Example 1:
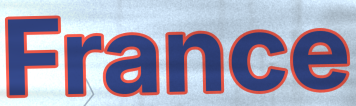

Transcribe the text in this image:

France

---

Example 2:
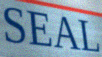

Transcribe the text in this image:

SEAL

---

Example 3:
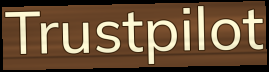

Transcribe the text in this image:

Trustpilot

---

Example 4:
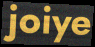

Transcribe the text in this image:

joiye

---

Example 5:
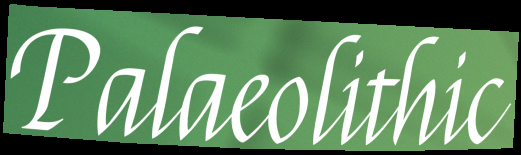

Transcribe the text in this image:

Palaeolithic